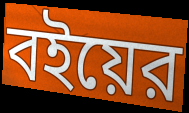
বইয়ের